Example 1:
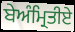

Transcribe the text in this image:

ਬੇਅੰਮ੍ਰਿਤੀਏ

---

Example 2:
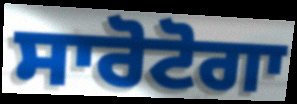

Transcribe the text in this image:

ਸਾਰੋਟੋਗਾ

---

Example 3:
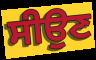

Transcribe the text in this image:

ਸੀਉਣ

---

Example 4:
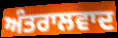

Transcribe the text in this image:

ਅੰਤਰਾਲਵਾਦ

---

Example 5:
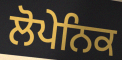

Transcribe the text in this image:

ਲੋਪੇਨਿਕ